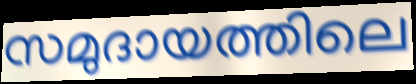
സമുദായത്തിലെ